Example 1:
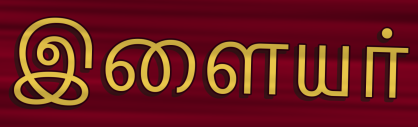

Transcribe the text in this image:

இளையர்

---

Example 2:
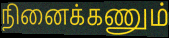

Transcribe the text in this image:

நினைக்கணும்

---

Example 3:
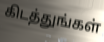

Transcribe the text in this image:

கிடத்துங்கள்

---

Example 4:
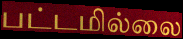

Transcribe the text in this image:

பட்டமில்லை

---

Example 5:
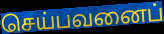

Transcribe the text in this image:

செய்பவனைப்